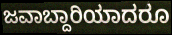
ಜವಾಬ್ದಾರಿಯಾದರೂ